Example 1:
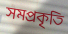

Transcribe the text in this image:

সমপ্রকৃতি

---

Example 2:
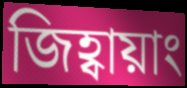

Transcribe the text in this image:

জিহ্বায়াং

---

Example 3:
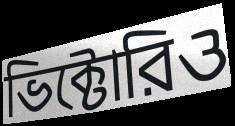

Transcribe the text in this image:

ভিক্টোরিও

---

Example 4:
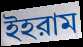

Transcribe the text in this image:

ইহরাম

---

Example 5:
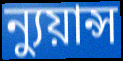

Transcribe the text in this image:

ন্যুয়ান্স